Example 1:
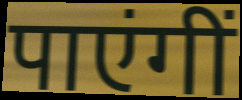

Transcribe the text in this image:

पाएंगीं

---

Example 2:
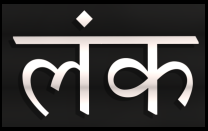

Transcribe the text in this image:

लंक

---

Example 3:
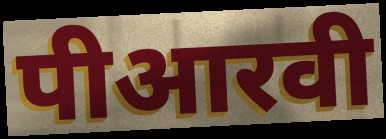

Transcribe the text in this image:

पीआरवी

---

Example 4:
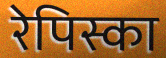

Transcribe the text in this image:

रेपिस्का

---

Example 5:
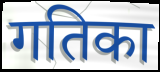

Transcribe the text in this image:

गतिका